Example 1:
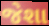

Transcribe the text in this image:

જેશા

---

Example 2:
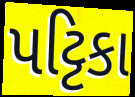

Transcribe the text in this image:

પટ્ટિકા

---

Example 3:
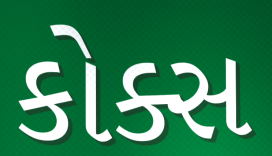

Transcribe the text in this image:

કોક્સ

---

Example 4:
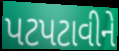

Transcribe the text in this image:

પટપટાવીને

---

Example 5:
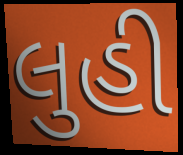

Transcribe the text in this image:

લુહી